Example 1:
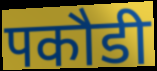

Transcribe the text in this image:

पकौडी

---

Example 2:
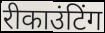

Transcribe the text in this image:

रीकाउंटिंग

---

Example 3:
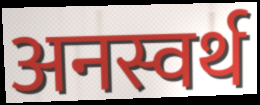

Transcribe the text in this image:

अनस्वर्थ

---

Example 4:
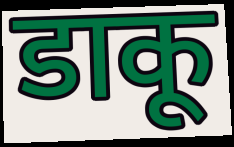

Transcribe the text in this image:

डाकू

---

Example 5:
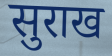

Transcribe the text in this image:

सुराख